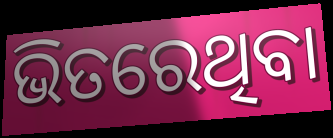
ଭିତରେଥିବା